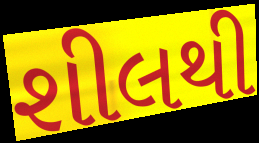
શીલથી